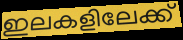
ഇലകളിലേക്ക്